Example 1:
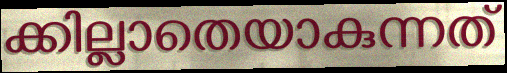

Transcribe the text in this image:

ക്കില്ലാതെയാകുന്നത്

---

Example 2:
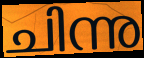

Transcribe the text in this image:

ചിന്നു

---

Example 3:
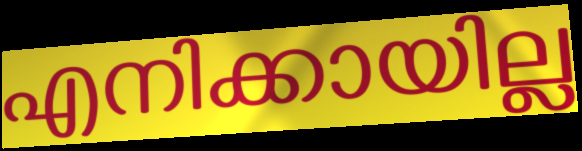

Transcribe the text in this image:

എനിക്കായില്ല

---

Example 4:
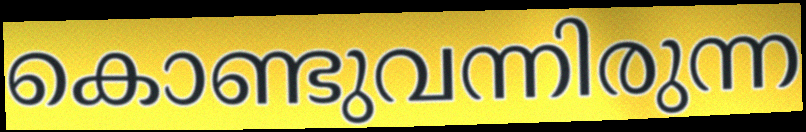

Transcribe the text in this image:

കൊണ്ടുവന്നിരുന്ന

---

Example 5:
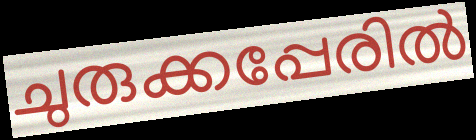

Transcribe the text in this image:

ചുരുക്കപ്പേരിൽ